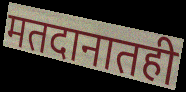
मतदानातही